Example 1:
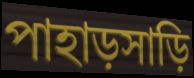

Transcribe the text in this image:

পাহাড়সাড়ি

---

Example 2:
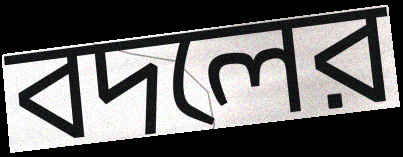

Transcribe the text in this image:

বদলের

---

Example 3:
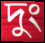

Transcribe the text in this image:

দুং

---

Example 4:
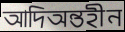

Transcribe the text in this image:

আদিঅন্তহীন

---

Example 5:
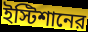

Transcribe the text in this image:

ইস্টিশানের